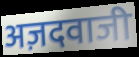
अज़दवाजी